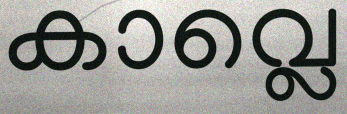
കാവ്ലെ